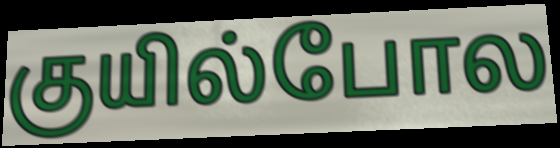
குயில்போல